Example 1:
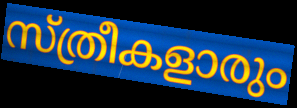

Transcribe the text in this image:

സ്ത്രീകളാരും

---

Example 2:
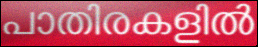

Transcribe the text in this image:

പാതിരകളിൽ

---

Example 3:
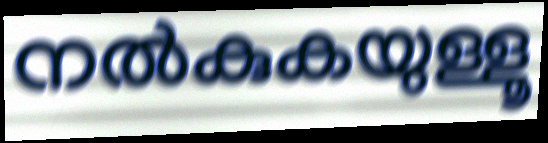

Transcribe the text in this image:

നൽകുകയുള്ളൂ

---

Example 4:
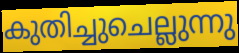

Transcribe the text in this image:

കുതിച്ചുചെല്ലുന്നു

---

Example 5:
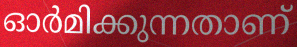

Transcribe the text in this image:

ഓർമിക്കുന്നതാണ്